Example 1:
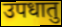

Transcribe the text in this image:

उपधातु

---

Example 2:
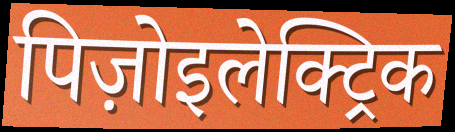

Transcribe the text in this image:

पिज़ोइलेक्ट्रिक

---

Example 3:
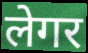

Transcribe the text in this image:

लेगर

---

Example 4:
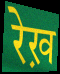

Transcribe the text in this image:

रेख़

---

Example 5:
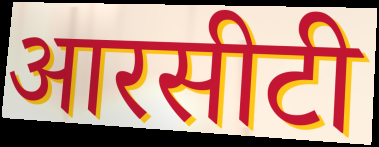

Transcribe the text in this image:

आरसीटी